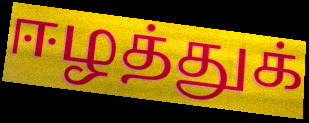
ஈழத்துக்